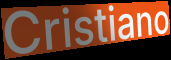
Cristiano